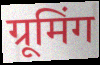
ग्रूमिंग